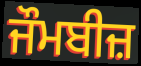
ਜੌਮਬੀਜ਼